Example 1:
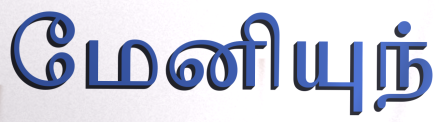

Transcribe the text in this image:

மேனியுந்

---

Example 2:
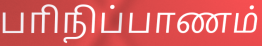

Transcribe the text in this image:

பரிநிப்பாணம்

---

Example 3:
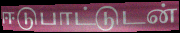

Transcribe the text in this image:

ஈடுபாட்டுடன்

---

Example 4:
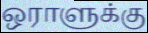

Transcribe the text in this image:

ஒராளுக்கு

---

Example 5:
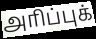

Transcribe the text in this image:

அரிப்புக்